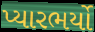
પ્યારભર્યો